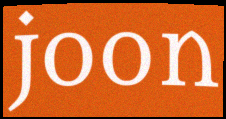
joon